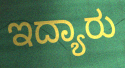
ಇದ್ಯಾರು